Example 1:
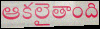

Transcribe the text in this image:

ఆకలైతాంది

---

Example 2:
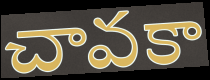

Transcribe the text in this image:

చావకా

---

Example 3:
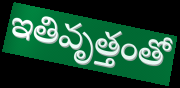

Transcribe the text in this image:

ఇతివృత్తంతో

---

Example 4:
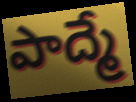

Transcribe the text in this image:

పాద్మే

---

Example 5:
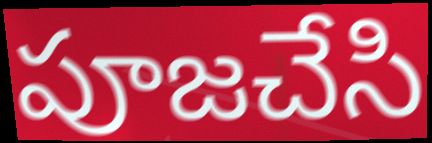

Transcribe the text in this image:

పూజచేసి